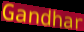
Gandhar